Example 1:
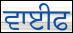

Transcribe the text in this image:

ਵਾਈਫ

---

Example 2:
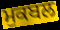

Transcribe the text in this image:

ਮੁਕਬਲ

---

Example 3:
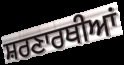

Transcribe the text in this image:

ਸ਼ਰਣਾਰਥੀਆਂ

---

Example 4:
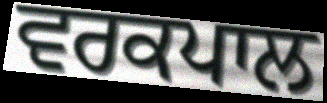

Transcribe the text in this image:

ਵਰਕਪਾਲ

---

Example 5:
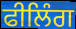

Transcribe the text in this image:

ਫੀਲਿੰਗ